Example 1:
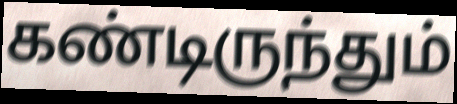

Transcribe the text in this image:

கண்டிருந்தும்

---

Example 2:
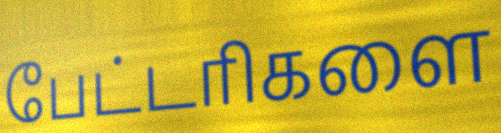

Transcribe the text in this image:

பேட்டரிகளை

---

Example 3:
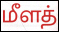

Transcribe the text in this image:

மீளத்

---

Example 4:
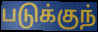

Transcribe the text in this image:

படுக்குந்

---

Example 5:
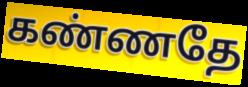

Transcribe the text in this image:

கண்ணதே